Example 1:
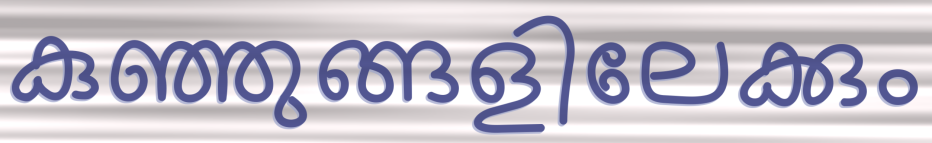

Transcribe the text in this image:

കുഞ്ഞുങ്ങളിലേക്കും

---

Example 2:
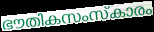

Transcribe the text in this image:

ഭൗതികസംസ്‌കാരം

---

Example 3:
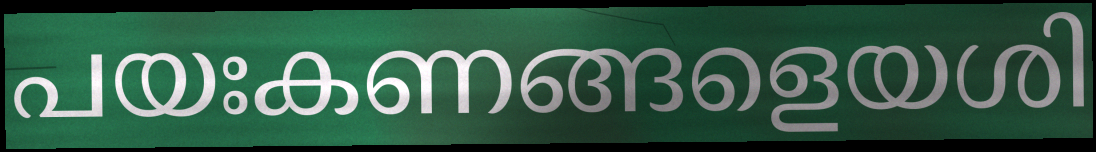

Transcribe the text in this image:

പയഃകണങ്ങളെയശി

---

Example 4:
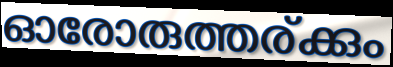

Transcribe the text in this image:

ഓരോരുത്തര്ക്കും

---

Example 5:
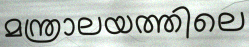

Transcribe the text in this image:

മന്ത്രാലയത്തിലെ